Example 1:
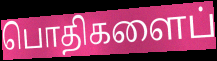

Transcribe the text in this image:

பொதிகளைப்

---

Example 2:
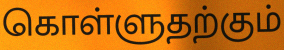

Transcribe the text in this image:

கொள்ளுதற்கும்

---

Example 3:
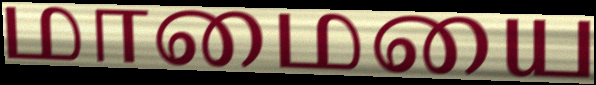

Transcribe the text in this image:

மாமையை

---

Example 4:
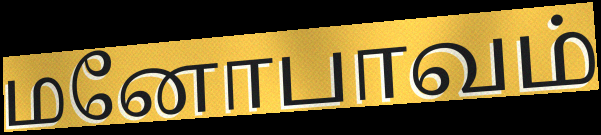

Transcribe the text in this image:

மனோபாவம்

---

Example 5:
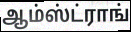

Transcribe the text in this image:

ஆம்ஸ்ட்ராங்